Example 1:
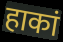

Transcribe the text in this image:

हाकां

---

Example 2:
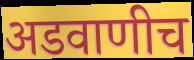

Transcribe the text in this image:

अडवाणीच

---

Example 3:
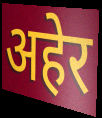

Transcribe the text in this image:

अहेर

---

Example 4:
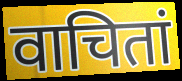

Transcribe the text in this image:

वाचितां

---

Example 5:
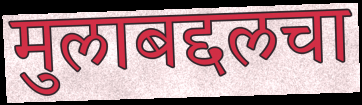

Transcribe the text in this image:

मुलाबद्दलचा